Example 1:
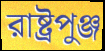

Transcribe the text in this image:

রাষ্ট্রপুঞ্জ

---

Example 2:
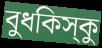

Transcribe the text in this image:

বুধকিস্‌কু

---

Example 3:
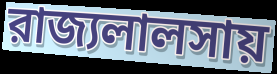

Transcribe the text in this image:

রাজ্যলালসায়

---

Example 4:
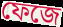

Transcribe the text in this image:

ফেজে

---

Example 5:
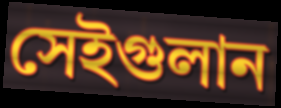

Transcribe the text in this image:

সেইগুলান